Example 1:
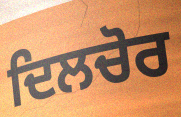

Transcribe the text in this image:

ਦਿਲਚੋਰ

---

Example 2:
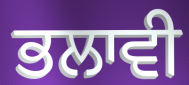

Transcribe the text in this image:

ਭਲਾਵੀ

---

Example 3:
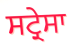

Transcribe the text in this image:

ਸਟ੍ਰੇਸਾ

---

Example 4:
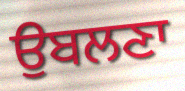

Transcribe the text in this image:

ਉਬਲਣਾ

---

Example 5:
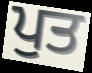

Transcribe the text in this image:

ਪੁਤ